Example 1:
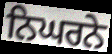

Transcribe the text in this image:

ਨਿਘਰਨੇ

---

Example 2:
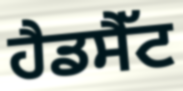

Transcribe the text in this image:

ਹੈਡਸੈੱਟ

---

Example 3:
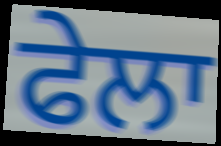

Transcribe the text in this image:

ਫੇਲਾ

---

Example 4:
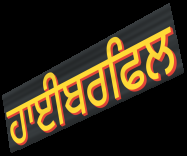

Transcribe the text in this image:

ਹਾਈਬਰਫਿਲ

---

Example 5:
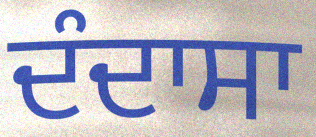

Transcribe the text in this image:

ਦੰਦਾਸਾ